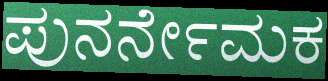
ಪುನರ್ನೇಮಕ